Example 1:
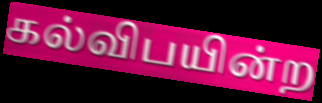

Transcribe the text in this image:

கல்விபயின்ற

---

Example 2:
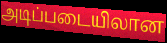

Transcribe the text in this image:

அடிப்படையிலான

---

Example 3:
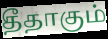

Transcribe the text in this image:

தீதாகும்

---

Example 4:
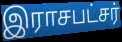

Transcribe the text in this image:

இராசபட்சர்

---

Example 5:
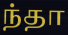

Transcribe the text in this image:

ந்தா